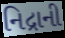
નિદ્રાની